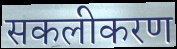
सकलीकरण